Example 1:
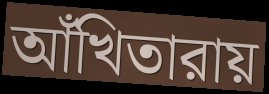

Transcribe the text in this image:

আঁখিতারায়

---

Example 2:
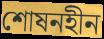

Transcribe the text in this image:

শোষনহীন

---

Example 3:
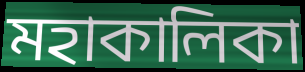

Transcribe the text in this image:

মহাকালিকা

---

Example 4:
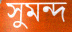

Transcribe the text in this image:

সুমন্দ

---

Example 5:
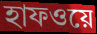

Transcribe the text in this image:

হাফওয়ে